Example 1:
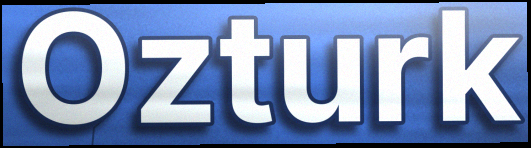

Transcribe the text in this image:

Ozturk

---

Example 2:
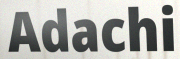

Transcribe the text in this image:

Adachi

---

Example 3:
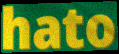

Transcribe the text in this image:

hato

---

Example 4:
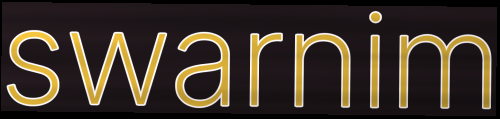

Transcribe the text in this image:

swarnim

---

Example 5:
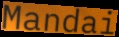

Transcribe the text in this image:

Mandai